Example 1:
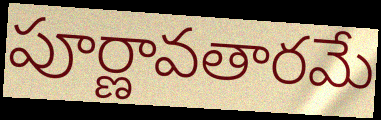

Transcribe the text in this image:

పూర్ణావతారమే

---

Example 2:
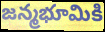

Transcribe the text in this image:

జన్మభూమికి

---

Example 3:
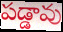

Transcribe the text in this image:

పడ్డావు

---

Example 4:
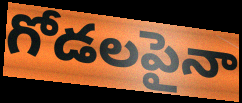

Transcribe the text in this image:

గోడలపైనా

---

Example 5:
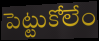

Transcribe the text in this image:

పెట్టుకోలేం